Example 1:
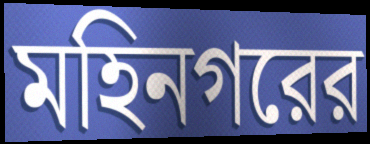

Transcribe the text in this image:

মহিনগরের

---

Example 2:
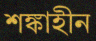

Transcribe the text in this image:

শঙ্কাহীন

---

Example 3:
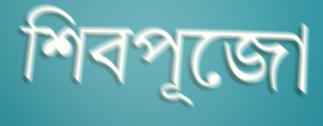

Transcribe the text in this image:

শিবপূজো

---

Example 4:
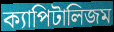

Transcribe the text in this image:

ক্যাপিটালিজম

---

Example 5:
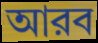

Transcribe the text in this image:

আরব